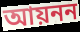
আয়নন